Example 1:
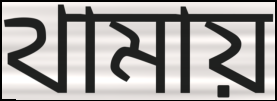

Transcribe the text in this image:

থামায়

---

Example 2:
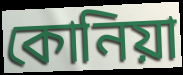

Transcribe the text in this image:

কোনিয়া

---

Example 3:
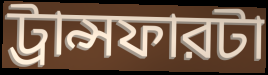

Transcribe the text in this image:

ট্রান্সফারটা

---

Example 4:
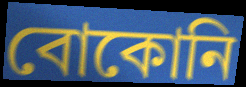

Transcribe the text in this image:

বোকোনি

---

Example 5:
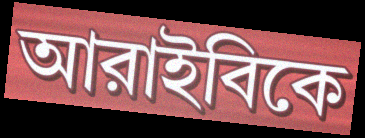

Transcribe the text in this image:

আরাইবিকে